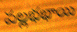
వల్లభభాయి